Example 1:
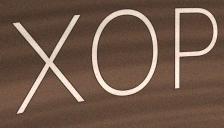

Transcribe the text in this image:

XOP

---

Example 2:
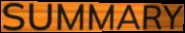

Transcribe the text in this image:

SUMMARY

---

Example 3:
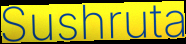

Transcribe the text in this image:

Sushruta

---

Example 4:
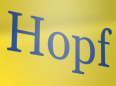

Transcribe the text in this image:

Hopf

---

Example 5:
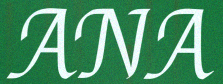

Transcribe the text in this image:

ANA